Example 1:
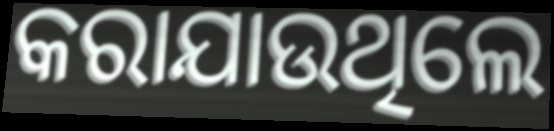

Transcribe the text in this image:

କରାଯାଉଥିଲେ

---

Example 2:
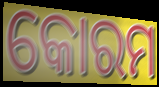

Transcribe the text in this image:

କୋରମ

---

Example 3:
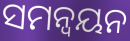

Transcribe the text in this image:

ସମନ୍ୱୟନ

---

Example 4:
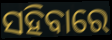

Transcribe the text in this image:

ସହିବାରେ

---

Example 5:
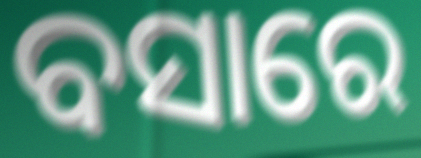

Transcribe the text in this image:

ବସାରେ